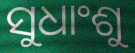
ସୁଧାଂଶୁ